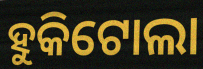
ହୁକିଟୋଲା